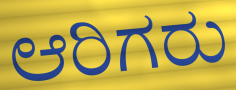
ಆರಿಗರು